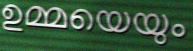
ഉമ്മയെയും